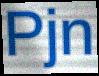
Pjn